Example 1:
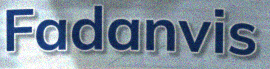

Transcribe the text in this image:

Fadanvis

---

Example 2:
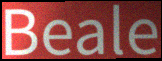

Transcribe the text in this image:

Beale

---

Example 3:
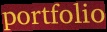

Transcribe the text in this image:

portfolio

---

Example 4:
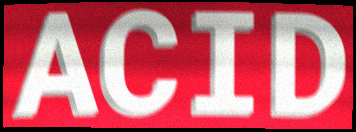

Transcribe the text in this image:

ACID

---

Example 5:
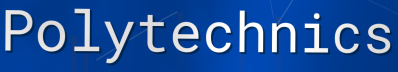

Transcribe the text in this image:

Polytechnics